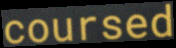
coursed